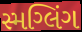
સ્મગ્લિંગ